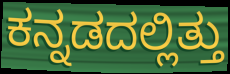
ಕನ್ನಡದಲ್ಲಿತ್ತು